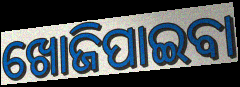
ଖୋଜିପାଇବା